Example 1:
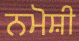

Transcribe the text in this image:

ਨਮੋਸ਼ੀ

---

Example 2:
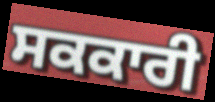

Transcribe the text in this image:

ਸਕਕਾਰੀ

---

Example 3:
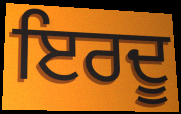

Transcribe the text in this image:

ਇਰਦੂ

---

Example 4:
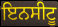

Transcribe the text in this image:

ਇਨਸੀਟੂ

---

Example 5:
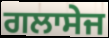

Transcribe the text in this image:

ਗਲਾਸੇਜ